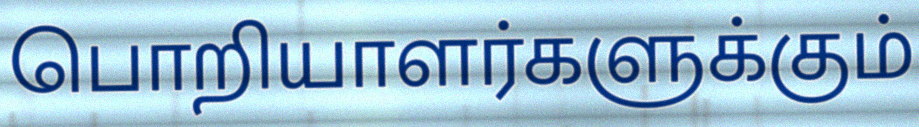
பொறியாளர்களுக்கும்